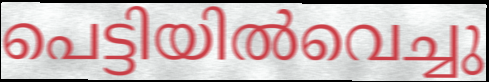
പെട്ടിയിൽവെച്ചു